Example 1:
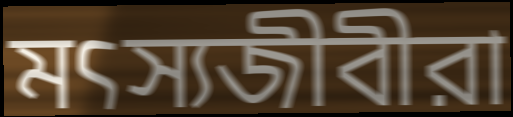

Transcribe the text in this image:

মৎস্যজীবীরা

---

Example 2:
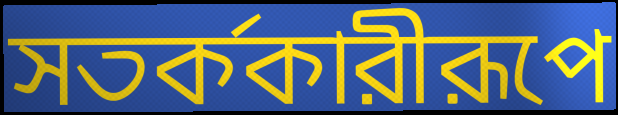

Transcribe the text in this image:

সতর্ককারীরূপে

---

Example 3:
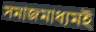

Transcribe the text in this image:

সমাজমাধ্যমই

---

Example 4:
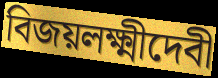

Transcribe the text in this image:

বিজয়লক্ষ্মীদেবী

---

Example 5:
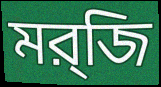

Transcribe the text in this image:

মর্‌জি